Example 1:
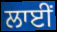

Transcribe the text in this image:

ਲਾਈਂ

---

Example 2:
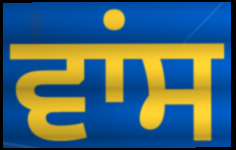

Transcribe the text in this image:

ਵਾਂਸ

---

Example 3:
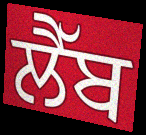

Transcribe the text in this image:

ਲੈੱਬ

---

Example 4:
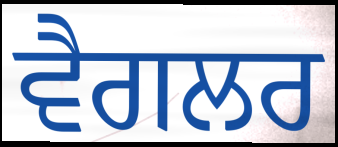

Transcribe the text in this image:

ਵੈਗਲਰ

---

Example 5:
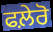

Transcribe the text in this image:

ਫਲ਼ੇਰੋ